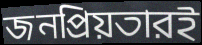
জনপ্রিয়তারই